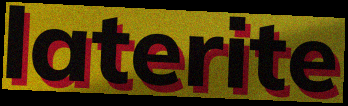
laterite